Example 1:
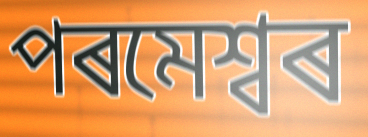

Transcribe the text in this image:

পৰমেশ্বৰ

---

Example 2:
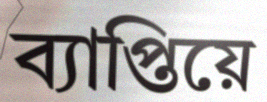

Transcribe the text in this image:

ব্য়াপ্তিয়ে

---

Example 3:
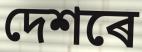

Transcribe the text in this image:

দেশৰে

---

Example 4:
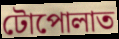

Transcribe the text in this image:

টোপোলাত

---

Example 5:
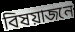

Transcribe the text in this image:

বিষয়াজনে